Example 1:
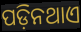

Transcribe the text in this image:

ପଡ଼ିନଥାଏ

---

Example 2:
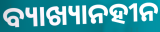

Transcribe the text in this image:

ବ୍ୟାଖ୍ୟାନହୀନ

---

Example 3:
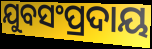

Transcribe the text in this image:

ଯୁବସଂପ୍ରଦାୟ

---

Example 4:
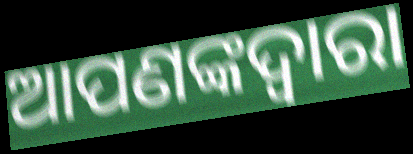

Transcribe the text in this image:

ଆପଣଙ୍କଦ୍ଵାରା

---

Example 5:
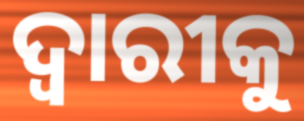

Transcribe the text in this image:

ଦ୍ଵାରୀକୁ